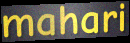
mahari